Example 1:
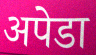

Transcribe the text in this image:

अपेडा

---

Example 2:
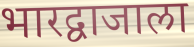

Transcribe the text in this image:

भारद्वाजाला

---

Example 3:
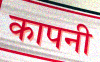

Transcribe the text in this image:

कापनी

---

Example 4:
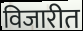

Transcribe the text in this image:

विजारीत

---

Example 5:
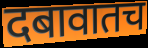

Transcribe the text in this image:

दबावातच